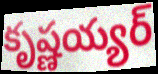
కృష్ణయ్యర్